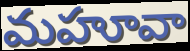
మహూవా